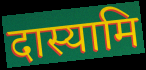
दास्यामि